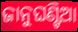
ଜାନୁଘଣ୍ଟିଆ